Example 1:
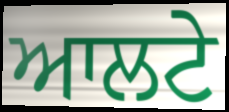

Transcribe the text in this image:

ਆਲਟੇ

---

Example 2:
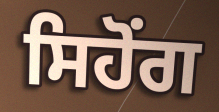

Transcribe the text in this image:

ਸਿਹੋਂਗ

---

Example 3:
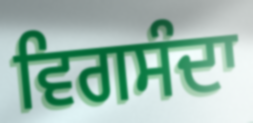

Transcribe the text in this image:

ਵਿਗਸੰਦਾ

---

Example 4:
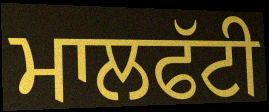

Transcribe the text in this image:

ਮਾਲਫੱਟੀ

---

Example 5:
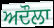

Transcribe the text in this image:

ਅਦੌਲਾ